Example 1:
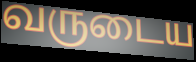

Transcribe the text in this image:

வருடைய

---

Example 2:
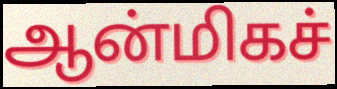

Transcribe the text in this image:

ஆன்மிகச்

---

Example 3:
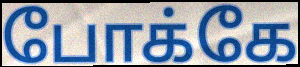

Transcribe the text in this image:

போக்கே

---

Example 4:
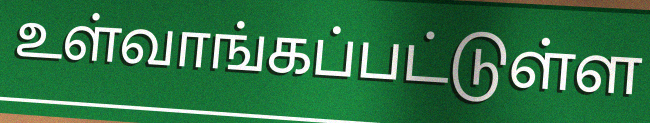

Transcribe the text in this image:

உள்வாங்கப்பட்டுள்ள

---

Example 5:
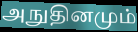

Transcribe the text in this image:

அநுதினமும்